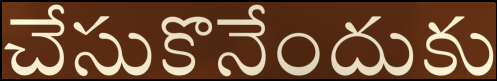
చేసుకొనేందుకు